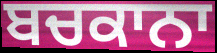
ਬਚਕਾਨਾ